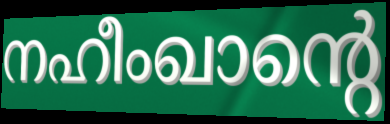
നഹീംഖാന്റെ